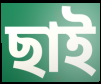
ছাই